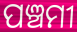
ପଞ୍ଚମୀ